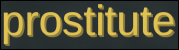
prostitute